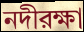
নদীরক্ষা